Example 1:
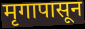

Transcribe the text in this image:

मृगापासून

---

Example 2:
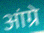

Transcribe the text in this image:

आंग्रे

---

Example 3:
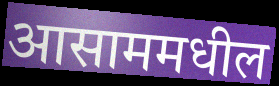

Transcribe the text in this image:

आसाममधील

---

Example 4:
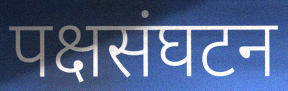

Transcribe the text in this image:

पक्षसंघटन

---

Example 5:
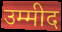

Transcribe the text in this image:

उम्मीद